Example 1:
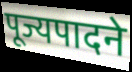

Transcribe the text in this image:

पूज्यपादने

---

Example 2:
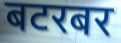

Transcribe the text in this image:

बटरबर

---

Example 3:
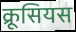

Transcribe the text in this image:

क्रूसियस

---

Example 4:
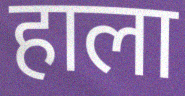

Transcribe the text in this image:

हाला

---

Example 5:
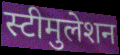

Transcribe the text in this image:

स्टीमुलेशन